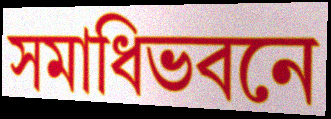
সমাধিভবনে